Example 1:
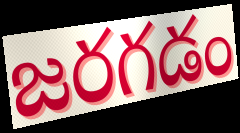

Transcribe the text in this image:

జరగడం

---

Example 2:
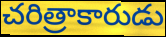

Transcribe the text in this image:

చరిత్రాకారుడు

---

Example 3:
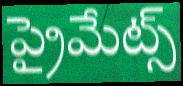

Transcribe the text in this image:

ప్రైమేట్స్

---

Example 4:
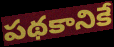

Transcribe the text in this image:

పథకానికే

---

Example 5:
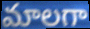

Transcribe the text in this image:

మాలగా